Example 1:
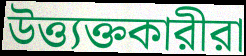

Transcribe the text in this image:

উত্ত্যক্তকারীরা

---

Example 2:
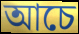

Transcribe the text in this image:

আচে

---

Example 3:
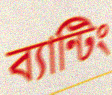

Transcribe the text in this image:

ব্যান্টিং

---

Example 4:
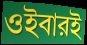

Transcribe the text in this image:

ওইবারই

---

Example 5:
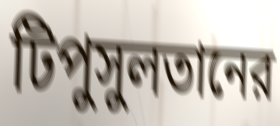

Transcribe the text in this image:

টিপুসুলতানের